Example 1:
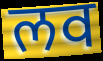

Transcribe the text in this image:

लव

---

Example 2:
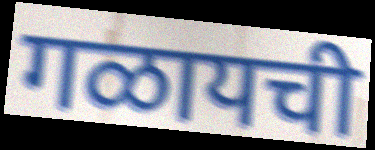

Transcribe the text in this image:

गळायची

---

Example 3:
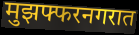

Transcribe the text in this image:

मुझफ्फरनगरात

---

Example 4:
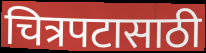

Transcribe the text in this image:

चित्रपटासाठी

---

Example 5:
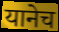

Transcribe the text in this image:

यानेच